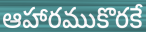
ఆహారముకొరకే